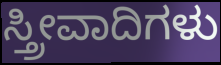
ಸ್ತ್ರೀವಾದಿಗಳು